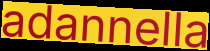
adannella